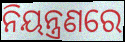
ନିୟନ୍ତ୍ରଣରେ